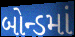
બોન્ડમાં